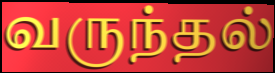
வருந்தல்